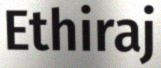
Ethiraj